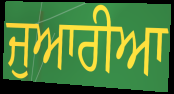
ਜੁਆਰੀਆ